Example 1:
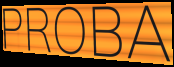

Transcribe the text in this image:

PROBA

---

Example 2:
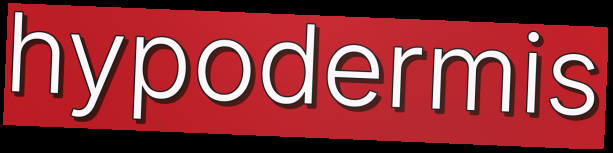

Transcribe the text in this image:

hypodermis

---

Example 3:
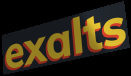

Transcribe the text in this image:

exalts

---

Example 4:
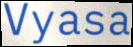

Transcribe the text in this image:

Vyasa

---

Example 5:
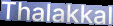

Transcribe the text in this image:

Thalakkal